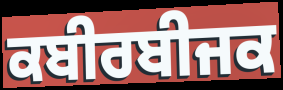
ਕਬੀਰਬੀਜਕ